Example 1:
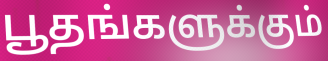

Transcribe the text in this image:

பூதங்களுக்கும்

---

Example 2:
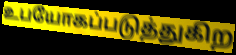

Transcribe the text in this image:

உபயோகப்படுத்துகிற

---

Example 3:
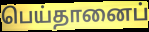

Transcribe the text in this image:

பெய்தானைப்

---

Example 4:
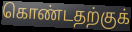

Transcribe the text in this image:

கொண்டதற்குக்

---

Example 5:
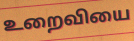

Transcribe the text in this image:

உறைவியை